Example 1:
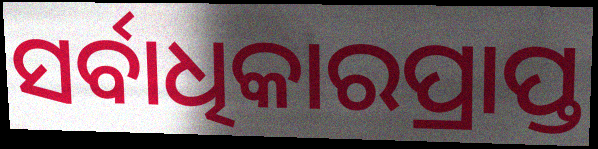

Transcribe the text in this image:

ସର୍ବାଧିକାରପ୍ରାପ୍ତ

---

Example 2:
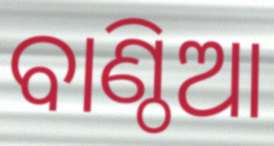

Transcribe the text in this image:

ବାଣ୍ଠିଆ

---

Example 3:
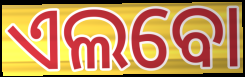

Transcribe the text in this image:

ଏଲବୋ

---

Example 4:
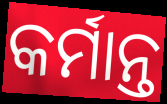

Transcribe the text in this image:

କର୍ମାନ୍ତ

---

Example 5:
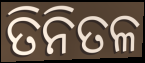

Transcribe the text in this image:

ତିନିତଳ